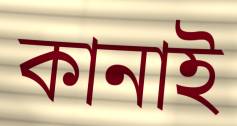
কানাই